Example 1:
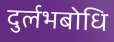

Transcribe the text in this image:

दुर्लभबोधि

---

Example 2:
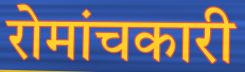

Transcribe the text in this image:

रोमांचकारी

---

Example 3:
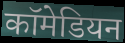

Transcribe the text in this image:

कॉमेडियन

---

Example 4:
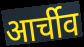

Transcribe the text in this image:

आर्चीव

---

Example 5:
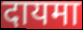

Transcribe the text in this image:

दायमा